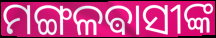
ମଙ୍ଗଳଵାସୀଙ୍କ